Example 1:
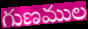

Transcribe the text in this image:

గుణముల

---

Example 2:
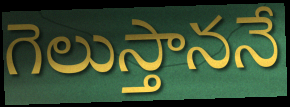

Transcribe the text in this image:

గెలుస్తాననే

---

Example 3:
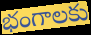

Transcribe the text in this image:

భంగాలకు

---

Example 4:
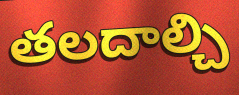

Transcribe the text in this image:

తలదాల్చి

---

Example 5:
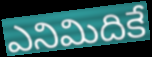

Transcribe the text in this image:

ఎనిమిదికే